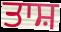
ਤਾਸ਼